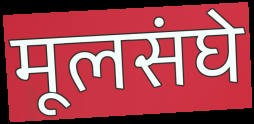
मूलसंघे